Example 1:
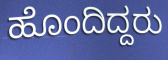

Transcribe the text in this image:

ಹೊಂದಿದ್ದರು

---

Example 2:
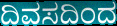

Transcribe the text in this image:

ದಿವಸದಿಂದ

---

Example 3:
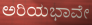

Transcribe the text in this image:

ಅರಿಯಭಾವೇ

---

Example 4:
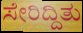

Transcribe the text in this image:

ಸೇರಿದ್ದಿತು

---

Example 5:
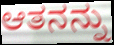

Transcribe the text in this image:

ಆತನನ್ನು